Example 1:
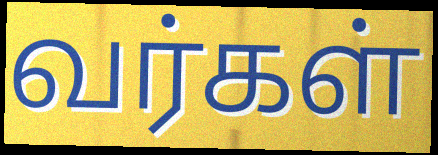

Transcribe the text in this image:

வர்கள்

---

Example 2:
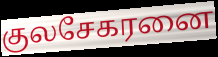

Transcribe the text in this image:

குலசேகரனை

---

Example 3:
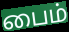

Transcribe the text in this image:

பைம்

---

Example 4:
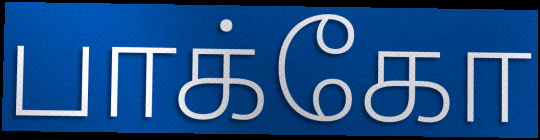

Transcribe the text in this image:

பாக்கோ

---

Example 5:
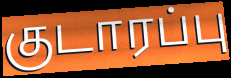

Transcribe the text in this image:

குடாரப்பு